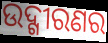
ଉଦ୍ଗୀରଣର